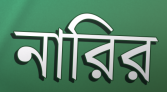
নারির